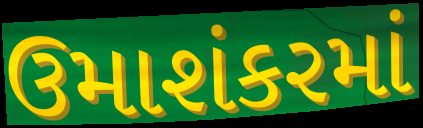
ઉમાશંકરમાં